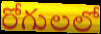
రోగులలో